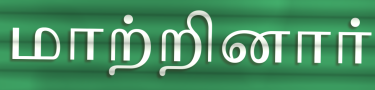
மாற்றினார்